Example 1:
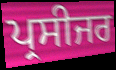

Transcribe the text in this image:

ਪ੍ਰਸੀਜਰ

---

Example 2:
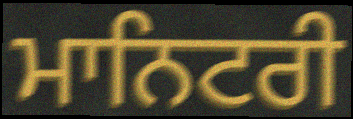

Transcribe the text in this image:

ਮਾਨਿਟਰੀ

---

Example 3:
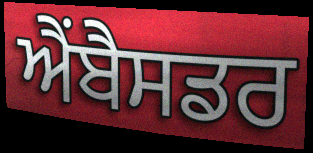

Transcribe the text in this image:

ਐਂਬੈਸਡਰ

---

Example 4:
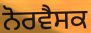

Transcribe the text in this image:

ਨੋਰਵੈਸਕ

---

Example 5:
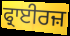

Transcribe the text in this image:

ਫ੍ਰਾਈਰਜ਼